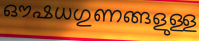
ഔഷധഗുണങ്ങളുള്ള